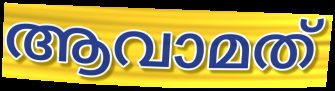
ആവാമത്